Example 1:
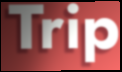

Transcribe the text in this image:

Trip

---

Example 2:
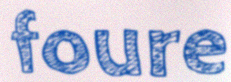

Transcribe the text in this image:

foure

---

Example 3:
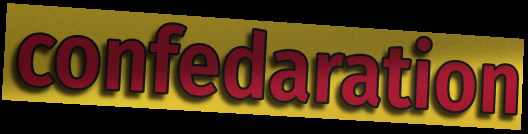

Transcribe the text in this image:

confedaration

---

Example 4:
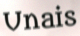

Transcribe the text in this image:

Unais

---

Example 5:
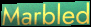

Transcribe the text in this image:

Marbled